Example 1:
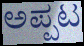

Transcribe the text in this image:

ಅಪ್ಪಟ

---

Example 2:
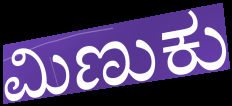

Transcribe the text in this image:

ಮಿಣುಕು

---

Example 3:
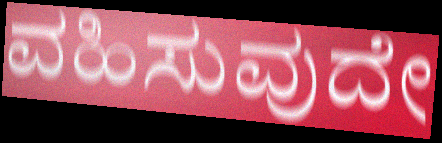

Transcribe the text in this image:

ವಹಿಸುವುದೇ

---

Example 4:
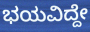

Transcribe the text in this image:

ಭಯವಿದ್ದೇ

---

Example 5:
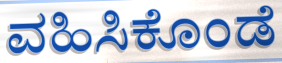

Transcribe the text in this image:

ವಹಿಸಿಕೊಂಡೆ